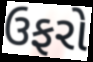
ઉફરો